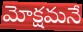
మోక్షమనే